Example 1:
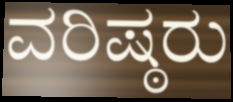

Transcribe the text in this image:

ವರಿಷ್ಠರು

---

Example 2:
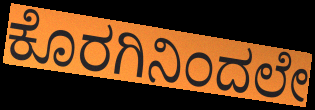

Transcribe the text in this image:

ಕೊರಗಿನಿಂದಲೇ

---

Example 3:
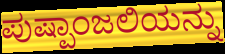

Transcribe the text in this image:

ಪುಷ್ಪಾಂಜಲಿಯನ್ನು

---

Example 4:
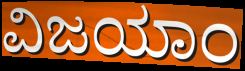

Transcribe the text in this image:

ವಿಜಯಾಂ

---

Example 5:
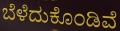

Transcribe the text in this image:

ಬೆಳೆದುಕೊಂಡಿವೆ